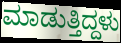
ಮಾಡುತ್ತಿದ್ದಳು